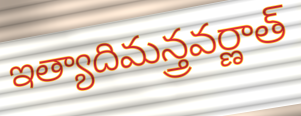
ఇత్యాదిమన్త్రవర్ణాత్